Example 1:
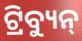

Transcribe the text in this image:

ଟ୍ରିବ୍ୟୁନ୍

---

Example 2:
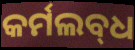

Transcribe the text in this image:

କର୍ମଲବ୍‌ଧ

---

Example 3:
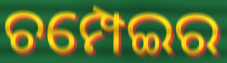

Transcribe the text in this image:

ଚମ୍ପେଇର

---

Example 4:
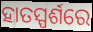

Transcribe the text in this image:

ହାତସ୍ପର୍ଶରେ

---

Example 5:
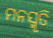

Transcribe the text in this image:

ମନସ୍ମୃତି